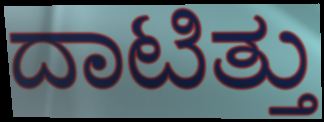
ದಾಟಿತ್ತು